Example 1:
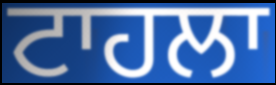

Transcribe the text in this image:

ਟਾਹਲਾ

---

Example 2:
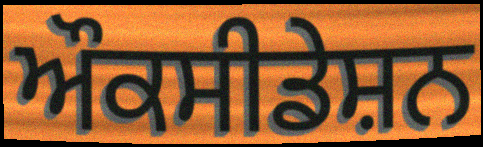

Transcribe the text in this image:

ਔਕਸੀਡੇਸ਼ਨ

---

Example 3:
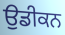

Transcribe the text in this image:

ਉਡੀਕਨ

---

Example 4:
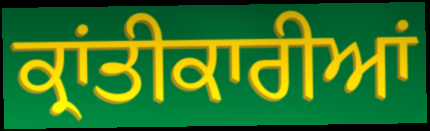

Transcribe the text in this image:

ਕ੍ਰਾਂਤੀਕਾਰੀਆਂ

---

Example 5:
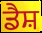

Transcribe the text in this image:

ਡੈਸ਼